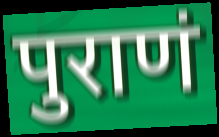
पुराणं